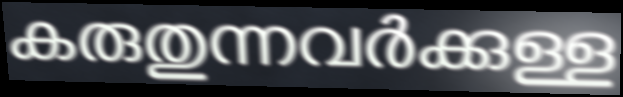
കരുതുന്നവർക്കുള്ള